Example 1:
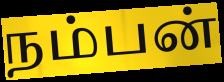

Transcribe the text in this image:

நம்பன்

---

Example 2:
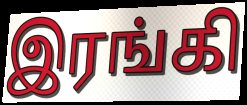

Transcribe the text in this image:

இரங்கி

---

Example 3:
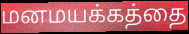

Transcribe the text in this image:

மனமயக்கத்தை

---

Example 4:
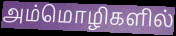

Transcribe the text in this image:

அம்மொழிகளில்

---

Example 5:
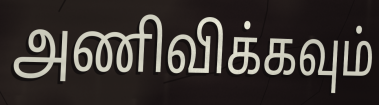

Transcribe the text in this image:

அணிவிக்கவும்